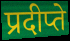
प्रदीप्ते